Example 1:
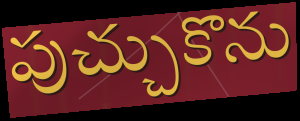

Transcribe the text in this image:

పుచ్చుకొను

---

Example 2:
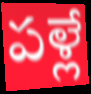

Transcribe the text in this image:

పళ్లే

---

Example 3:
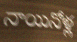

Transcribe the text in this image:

నాయినోళ్ల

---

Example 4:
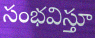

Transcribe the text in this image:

సంభవిస్తూ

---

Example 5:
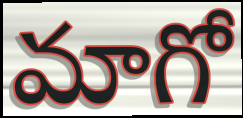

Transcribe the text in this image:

మాగో